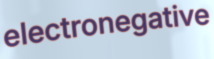
electronegative